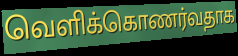
வெளிக்கொணர்வதாக